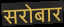
सरोबार